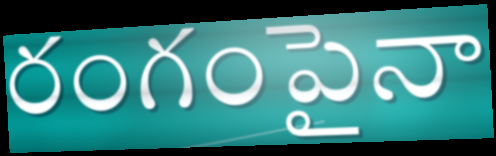
రంగంపైనా